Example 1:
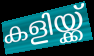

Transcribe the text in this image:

കളിയ്ക്ക്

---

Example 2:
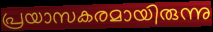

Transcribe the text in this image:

പ്രയാസകരമായിരുന്നു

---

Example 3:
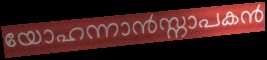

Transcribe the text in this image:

യോഹന്നാൻസ്നാപകൻ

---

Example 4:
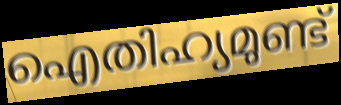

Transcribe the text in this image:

ഐതിഹ്യമുണ്ട്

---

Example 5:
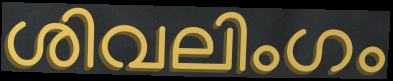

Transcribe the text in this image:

ശിവലിംഗം